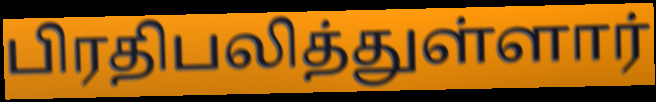
பிரதிபலித்துள்ளார்